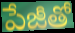
పేజీతో